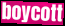
boycott